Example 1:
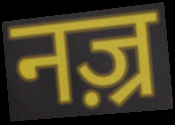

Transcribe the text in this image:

नज़्र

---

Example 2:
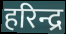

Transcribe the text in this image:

हरिन्द्र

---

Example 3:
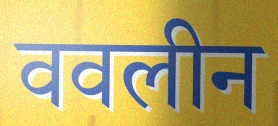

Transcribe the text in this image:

ववलीन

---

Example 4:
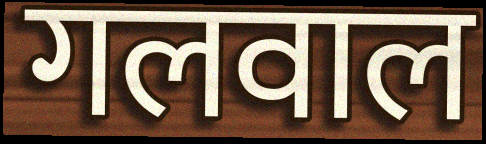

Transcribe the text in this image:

गलवाल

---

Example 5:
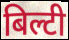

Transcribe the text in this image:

बिल्टी